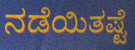
ನಡೆಯಿತಷ್ಟೆ